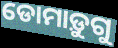
ଡୋମାଡ଼ୁଗୁ